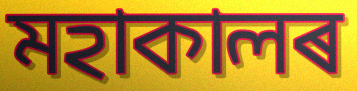
মহাকালৰ